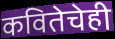
कवितेचेही